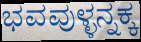
ಭವವುಳ್ಳನ್ನಕ್ಕ